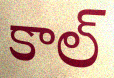
కాల్